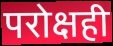
परोक्षही